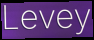
Levey